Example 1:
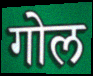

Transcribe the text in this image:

गोल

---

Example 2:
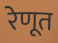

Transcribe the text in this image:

रेणूत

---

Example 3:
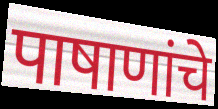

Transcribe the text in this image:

पाषाणांचे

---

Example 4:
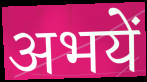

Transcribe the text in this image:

अभयें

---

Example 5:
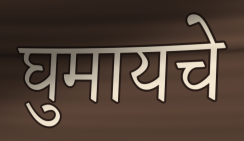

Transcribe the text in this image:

घुमायचे